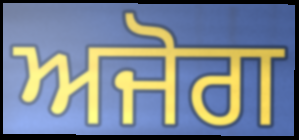
ਅਜੋਗ